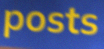
posts